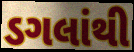
ડગલાંથી